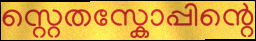
സ്റ്റെതസ്കോപ്പിന്റെ